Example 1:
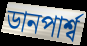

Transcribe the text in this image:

ডানপার্শ্ব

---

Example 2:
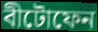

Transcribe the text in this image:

বীটোফেন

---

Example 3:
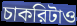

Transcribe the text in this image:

চাকরিটাও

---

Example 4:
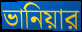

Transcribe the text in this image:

ভানিয়ার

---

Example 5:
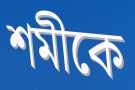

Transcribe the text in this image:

শমীকে